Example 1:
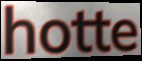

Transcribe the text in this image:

hotte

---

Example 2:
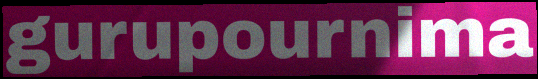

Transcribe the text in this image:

gurupournima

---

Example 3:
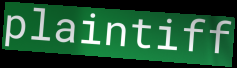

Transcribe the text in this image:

plaintiff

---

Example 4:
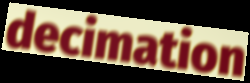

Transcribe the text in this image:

decimation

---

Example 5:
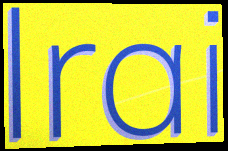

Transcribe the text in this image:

Irai